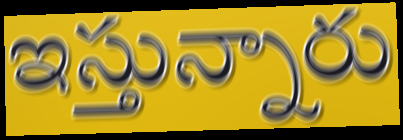
ఇస్తున్నారు